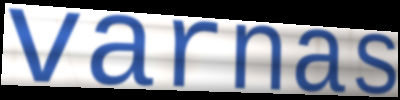
varnas